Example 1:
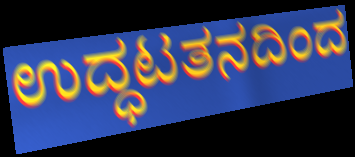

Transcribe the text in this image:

ಉದ್ಧಟತನದಿಂದ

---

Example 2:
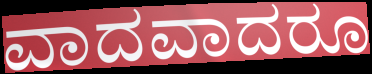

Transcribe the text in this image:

ವಾದವಾದರೂ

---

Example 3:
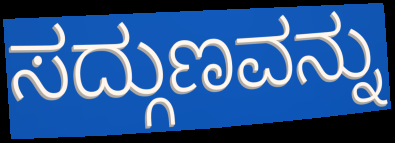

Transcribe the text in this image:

ಸದ್ಗುಣವನ್ನು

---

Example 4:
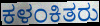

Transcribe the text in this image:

ಕಳಂಕಿತರು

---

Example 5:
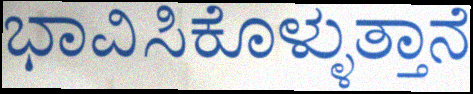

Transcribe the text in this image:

ಭಾವಿಸಿಕೊಳ್ಳುತ್ತಾನೆ